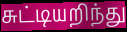
சுட்டியறிந்து